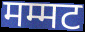
मम्मट